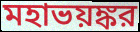
মহাভয়ঙ্কর